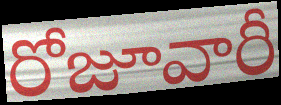
రోజూవారీ